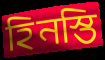
হিনস্তি